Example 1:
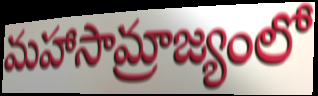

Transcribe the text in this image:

మహాసామ్రాజ్యంలో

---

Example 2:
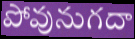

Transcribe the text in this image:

పోవునుగదా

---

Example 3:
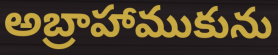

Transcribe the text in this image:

అబ్రాహాముకును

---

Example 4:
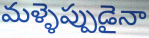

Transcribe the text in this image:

మళ్ళెప్పుడైనా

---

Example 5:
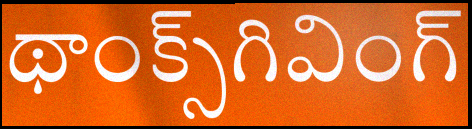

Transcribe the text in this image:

థాంక్స్‌గివింగ్